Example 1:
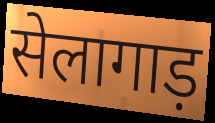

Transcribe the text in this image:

सेलागाड़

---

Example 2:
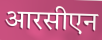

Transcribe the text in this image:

आरसीएन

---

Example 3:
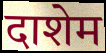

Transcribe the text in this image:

दाशेम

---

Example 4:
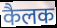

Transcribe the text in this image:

कैलक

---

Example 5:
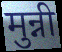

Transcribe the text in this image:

मुन्नी